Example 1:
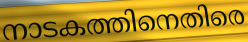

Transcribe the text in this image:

നാടകത്തിനെതിരെ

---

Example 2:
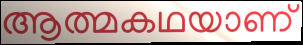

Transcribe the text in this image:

ആത്മകഥയാണ്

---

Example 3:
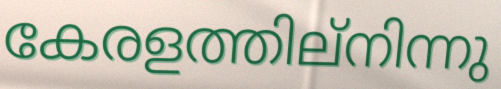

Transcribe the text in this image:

കേരളത്തില്നിന്നു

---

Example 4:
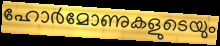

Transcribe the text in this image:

ഹോർമോണുകളുടെയും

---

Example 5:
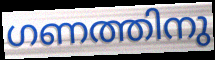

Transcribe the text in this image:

ഗണത്തിനു